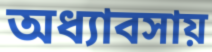
অধ্যাবসায়